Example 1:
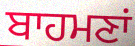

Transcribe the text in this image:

ਬਾਹਮਣਾਂ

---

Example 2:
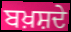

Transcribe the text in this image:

ਬਖ਼ਸ਼ਦੇ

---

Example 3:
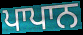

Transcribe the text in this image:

ਪਾਪਾਨ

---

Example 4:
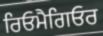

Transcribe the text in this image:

ਰਿਓਮੈਗਿਓਰ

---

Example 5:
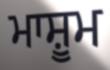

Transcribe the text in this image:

ਮਾਸ਼ੂਮ